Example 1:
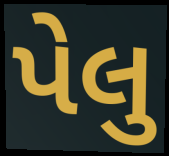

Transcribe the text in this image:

પેલુ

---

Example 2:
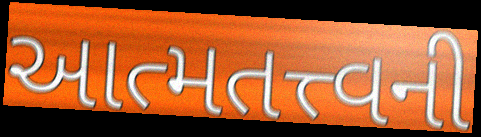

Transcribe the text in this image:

આત્મતત્ત્વની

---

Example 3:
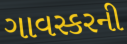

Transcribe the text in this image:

ગાવસ્કરની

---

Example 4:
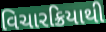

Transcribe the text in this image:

વિચારક્રિયાથી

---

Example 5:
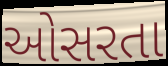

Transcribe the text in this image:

ઓસરતા